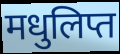
मधुलिप्त